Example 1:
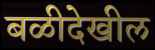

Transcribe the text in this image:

बळीदेखील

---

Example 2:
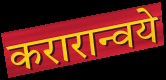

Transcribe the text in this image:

करारान्वये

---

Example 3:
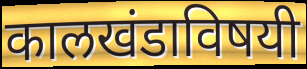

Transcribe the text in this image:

कालखंडाविषयी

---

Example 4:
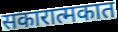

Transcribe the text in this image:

सकारात्मकात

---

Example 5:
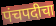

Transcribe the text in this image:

पंचपदीचा